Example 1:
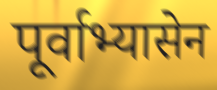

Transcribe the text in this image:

पूर्वाभ्यासेन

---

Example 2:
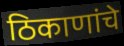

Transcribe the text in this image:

ठिकाणांचे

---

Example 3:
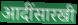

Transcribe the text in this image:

आदींसारखी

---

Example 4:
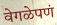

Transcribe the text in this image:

वेगळेपणं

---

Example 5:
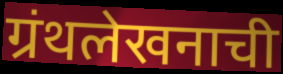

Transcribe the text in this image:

ग्रंथलेखनाची